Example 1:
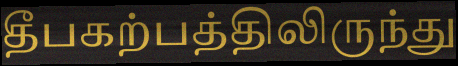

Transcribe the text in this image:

தீபகற்பத்திலிருந்து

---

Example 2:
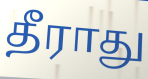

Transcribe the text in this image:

தீராது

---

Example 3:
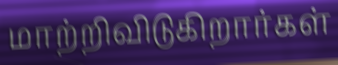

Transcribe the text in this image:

மாற்றிவிடுகிறார்கள்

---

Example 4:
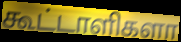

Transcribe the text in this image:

கூட்டாளிகளா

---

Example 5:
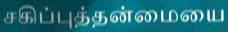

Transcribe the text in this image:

சகிப்புத்தன்மையை